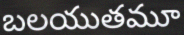
బలయుతమూ